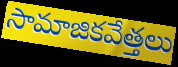
సామాజికవేత్తలు